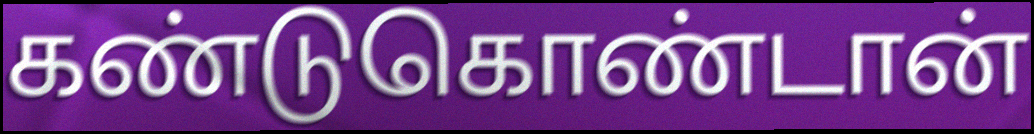
கண்டுகொண்டான்